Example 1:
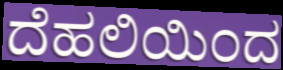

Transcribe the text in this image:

ದೆಹಲಿಯಿಂದ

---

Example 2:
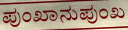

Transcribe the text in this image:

ಪುಂಖಾನುಪುಂಖ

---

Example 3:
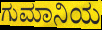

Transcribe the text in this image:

ಗುಮಾನಿಯ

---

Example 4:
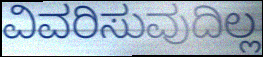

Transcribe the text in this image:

ವಿವರಿಸುವುದಿಲ್ಲ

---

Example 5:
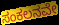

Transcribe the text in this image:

ಸಂಕಲನವೇ